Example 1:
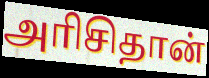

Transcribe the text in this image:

அரிசிதான்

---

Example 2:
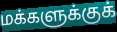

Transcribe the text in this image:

மக்களுக்குக்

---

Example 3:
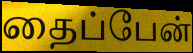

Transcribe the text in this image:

தைப்பேன்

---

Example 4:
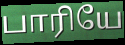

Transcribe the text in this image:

பாரியே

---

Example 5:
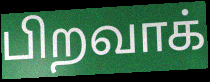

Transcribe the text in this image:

பிறவாக்